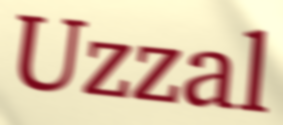
Uzzal